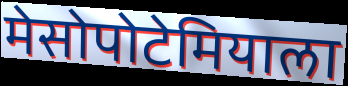
मेसोपोटेमियाला